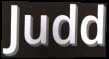
Judd